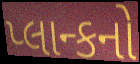
પ્લાન્કનો